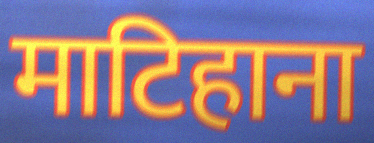
माटिहाना